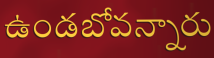
ఉండబోవన్నారు